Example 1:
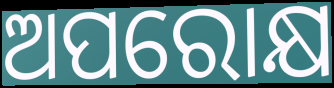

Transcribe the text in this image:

ଅପରୋକ୍ଷ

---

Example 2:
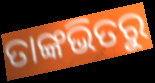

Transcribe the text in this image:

ତାଙ୍କଭିତରୁ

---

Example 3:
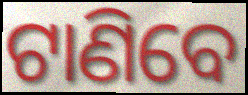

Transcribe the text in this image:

ଟାଣିବେ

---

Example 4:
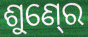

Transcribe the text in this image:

ଶୁଣ୍‍ରେ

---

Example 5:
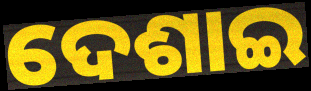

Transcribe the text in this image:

ଦେଶାଇ